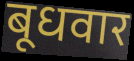
बूधवार